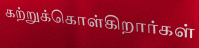
கற்றுக்கொள்கிறார்கள்